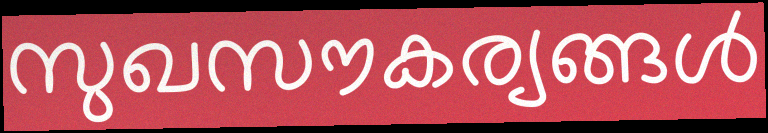
സുഖസൗകര്യങ്ങൾ